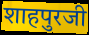
शाहपुरजी